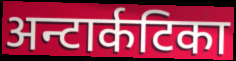
अन्टार्कटिका